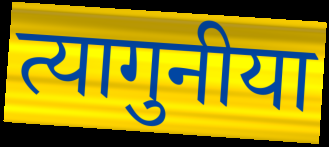
त्यागुनीया